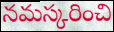
నమస్కరించి